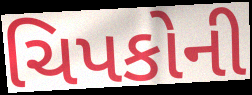
ચિપકોની